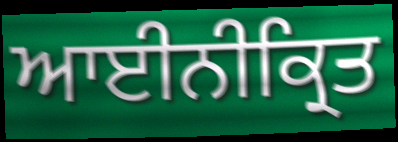
ਆਈਨੀਕ੍ਰਿਤ